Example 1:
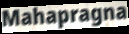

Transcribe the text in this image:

Mahapragna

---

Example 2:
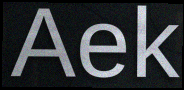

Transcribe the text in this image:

Aek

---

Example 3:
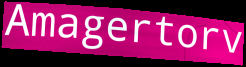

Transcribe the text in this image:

Amagertorv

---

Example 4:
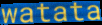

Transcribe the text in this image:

watata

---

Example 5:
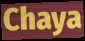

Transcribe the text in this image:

Chaya